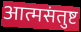
आत्मसंतुष्ट